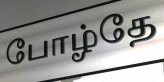
போழ்தே